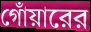
গোঁয়ারের